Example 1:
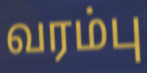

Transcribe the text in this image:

வரம்பு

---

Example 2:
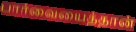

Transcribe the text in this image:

பார்வையைத்தான்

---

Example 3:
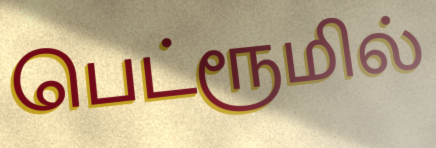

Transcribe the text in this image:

பெட்ரூமில்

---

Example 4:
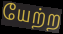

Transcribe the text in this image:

யேற்ற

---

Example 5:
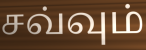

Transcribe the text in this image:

சவ்வும்